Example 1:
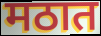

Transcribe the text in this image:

मठात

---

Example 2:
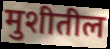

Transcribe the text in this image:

मुशीतील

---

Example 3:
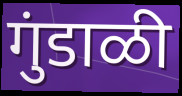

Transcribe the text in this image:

गुंडाळी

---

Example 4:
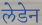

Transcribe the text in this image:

लेडेन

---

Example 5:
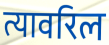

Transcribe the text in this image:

त्यावरिल